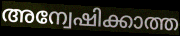
അന്വേഷിക്കാത്ത